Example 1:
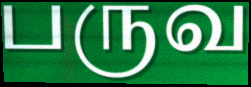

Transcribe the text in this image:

பருவ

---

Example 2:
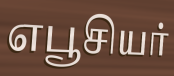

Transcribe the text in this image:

எபூசியர்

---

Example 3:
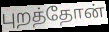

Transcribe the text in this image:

புறத்தோன்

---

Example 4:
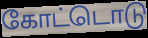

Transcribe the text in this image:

கோட்டொடு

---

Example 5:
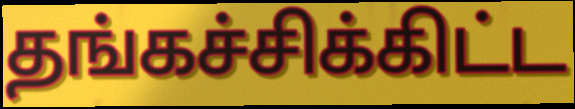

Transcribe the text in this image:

தங்கச்சிக்கிட்ட